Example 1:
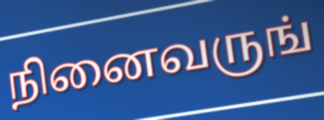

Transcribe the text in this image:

நினைவருங்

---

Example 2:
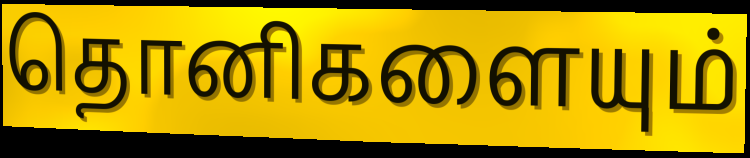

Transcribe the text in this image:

தொனிகளையும்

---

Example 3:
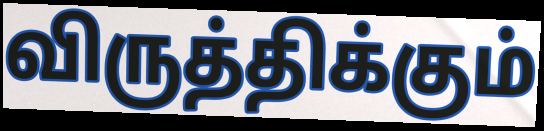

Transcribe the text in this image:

விருத்திக்கும்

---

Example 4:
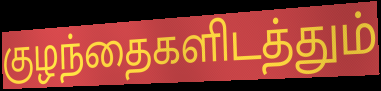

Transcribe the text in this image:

குழந்தைகளிடத்தும்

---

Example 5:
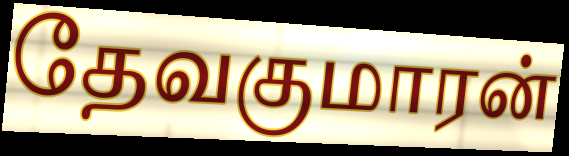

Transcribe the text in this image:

தேவகுமாரன்